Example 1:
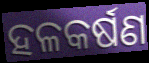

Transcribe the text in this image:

ହଳକର୍ଷଣ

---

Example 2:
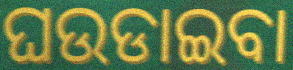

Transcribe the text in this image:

ଘଉଡାଇବା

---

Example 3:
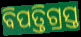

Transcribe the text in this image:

ବିପତ୍ତିଗ୍ରସ୍ତ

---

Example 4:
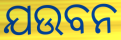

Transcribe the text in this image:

ଯଉବନ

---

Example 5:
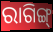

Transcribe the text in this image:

ରାଗିଙ୍ଗ୍